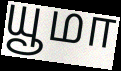
யூமா